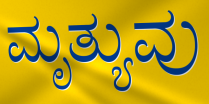
ಮೃತ್ಯುವು